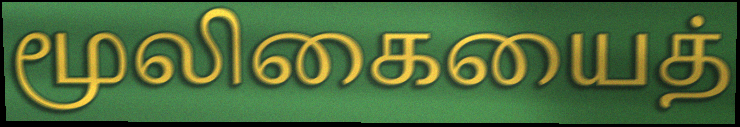
மூலிகையைத்